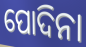
ପୋଦିନା